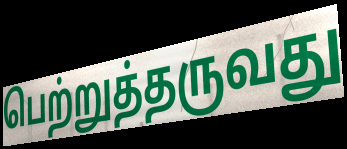
பெற்றுத்தருவது